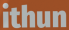
ithun